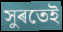
সুৰতেই